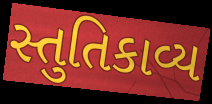
સ્તુતિકાવ્ય